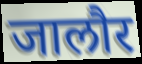
जालौर